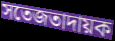
সতেজতাদায়ক